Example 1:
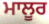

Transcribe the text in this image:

ਮਾਲੂਰ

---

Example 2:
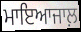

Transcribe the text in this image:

ਮਾਇਆਜਾਲ਼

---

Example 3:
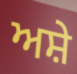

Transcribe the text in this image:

ਅਸ਼ੇ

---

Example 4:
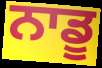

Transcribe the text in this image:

ਨਾਡੂ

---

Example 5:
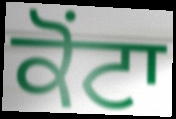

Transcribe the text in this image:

ਕੋਂਟਾ